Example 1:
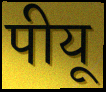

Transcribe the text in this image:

पीयू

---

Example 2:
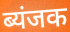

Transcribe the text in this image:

ब्यंजक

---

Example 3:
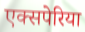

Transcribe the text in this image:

एक्सपेरिया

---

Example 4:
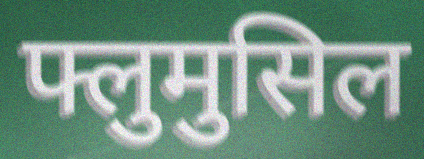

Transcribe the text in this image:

फ्लुमुसिल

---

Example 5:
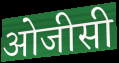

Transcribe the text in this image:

ओजीसी